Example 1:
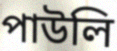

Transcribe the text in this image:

পাউলি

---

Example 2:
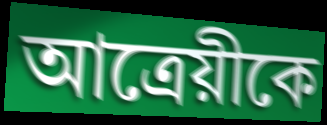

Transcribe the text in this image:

আত্রেয়ীকে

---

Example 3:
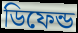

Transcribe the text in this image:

ডিফেন্ড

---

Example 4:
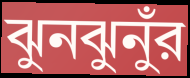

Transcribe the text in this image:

ঝুনঝুনুঁর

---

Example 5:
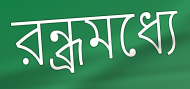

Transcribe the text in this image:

রন্ধ্রমধ্যে